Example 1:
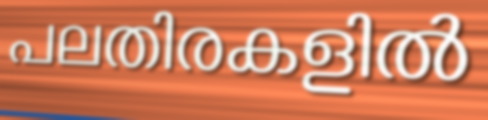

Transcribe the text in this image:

പലതിരകളിൽ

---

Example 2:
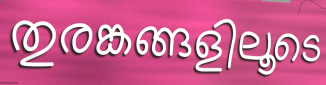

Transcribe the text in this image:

തുരങ്കങ്ങളിലൂടെ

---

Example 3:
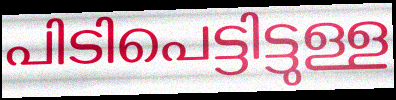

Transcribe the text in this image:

പിടിപെട്ടിട്ടുള്ള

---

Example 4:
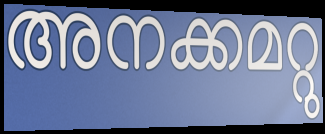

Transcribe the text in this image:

അനക്കമറ്റു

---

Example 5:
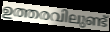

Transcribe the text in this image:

ഉത്തരവിലുണ്ട്